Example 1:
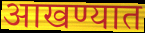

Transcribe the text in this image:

आखण्यात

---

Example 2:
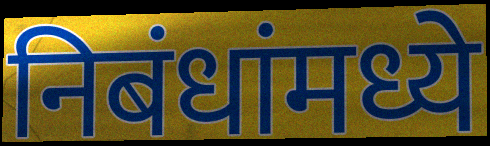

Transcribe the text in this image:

निबंधांमध्ये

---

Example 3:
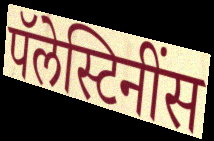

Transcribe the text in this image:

पॅलेस्टिनींस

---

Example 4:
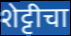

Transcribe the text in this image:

शेट्टीचा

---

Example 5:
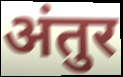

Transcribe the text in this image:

अंतुर